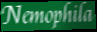
Nemophila